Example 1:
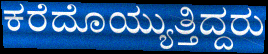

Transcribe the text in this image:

ಕರೆದೊಯ್ಯುತ್ತಿದ್ದರು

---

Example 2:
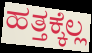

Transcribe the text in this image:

ಹತ್ತಕ್ಕೆಲ್ಲ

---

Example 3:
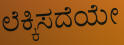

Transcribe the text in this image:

ಲೆಕ್ಕಿಸದೆಯೇ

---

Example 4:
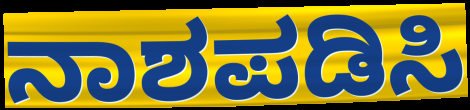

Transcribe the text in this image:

ನಾಶಪಡಿಸಿ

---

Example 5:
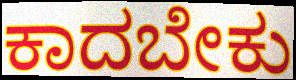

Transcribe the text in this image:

ಕಾದಬೇಕು